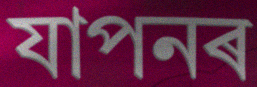
যাপনৰ